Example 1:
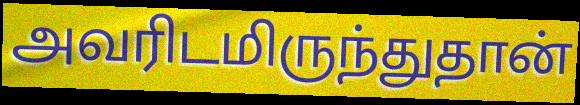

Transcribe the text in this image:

அவரிடமிருந்துதான்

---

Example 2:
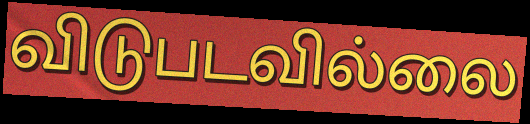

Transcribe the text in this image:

விடுபடவில்லை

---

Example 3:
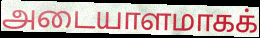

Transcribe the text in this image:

அடையாளமாகக்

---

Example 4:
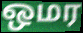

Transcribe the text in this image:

ஒமர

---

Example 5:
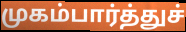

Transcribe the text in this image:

முகம்பார்த்துச்